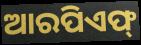
ଆରପିଏଫ୍